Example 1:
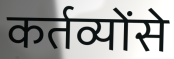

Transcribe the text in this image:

कर्तव्योंसे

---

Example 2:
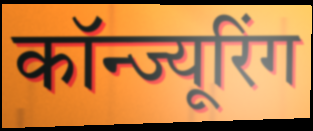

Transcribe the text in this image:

कॉन्ज्यूरिंग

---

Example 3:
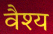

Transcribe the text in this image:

वैश्य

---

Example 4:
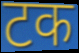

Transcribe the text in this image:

टक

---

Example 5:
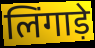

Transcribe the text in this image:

लिंगाड़े